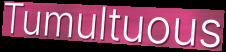
Tumultuous